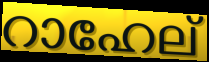
റാഹേല്